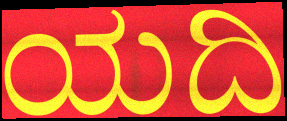
ಯದಿ